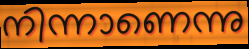
നിന്നാണെന്നു